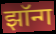
झॉन्ग